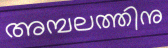
അമ്പലത്തിനു